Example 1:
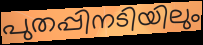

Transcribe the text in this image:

പുതപ്പിനടിയിലും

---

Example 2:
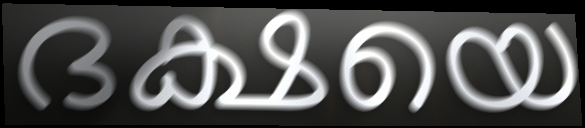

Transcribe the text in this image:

ദക്ഷയെ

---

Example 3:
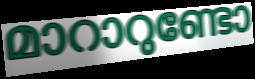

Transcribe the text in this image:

മാറാറുണ്ടോ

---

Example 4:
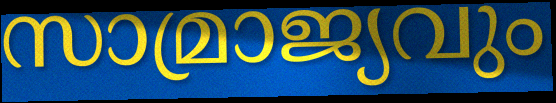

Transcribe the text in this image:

സാമ്രാജ്യവും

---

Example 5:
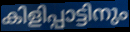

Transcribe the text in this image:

കിളിപ്പാട്ടിനും